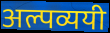
अल्पव्ययी